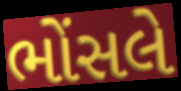
ભોંસલે